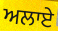
ਅਲਾਏ